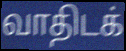
வாதிடக்